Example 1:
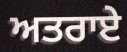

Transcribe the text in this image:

ਅਤਰਾਏ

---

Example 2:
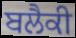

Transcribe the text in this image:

ਬਲੈਕੀ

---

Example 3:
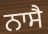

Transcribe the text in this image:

ਨਾਸੈ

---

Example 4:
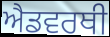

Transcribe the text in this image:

ਐਡਵਰਥੀ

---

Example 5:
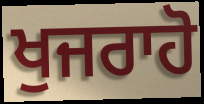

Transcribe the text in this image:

ਖੁਜਰਾਹੋ